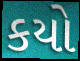
કયો